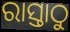
ରାସ୍ତାଠୁ